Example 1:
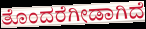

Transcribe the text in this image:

ತೊಂದರೆಗೀಡಾಗಿದೆ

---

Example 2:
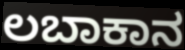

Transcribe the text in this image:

ಲಬಾಕಾನ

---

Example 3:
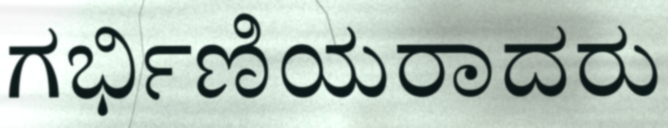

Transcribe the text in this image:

ಗರ್ಭಿಣಿಯರಾದರು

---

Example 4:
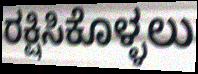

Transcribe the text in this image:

ರಕ್ಷಿಸಿಕೊಳ್ಳಲು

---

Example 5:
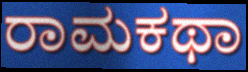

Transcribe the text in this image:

ರಾಮಕಥಾ